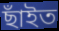
ছাঁইত